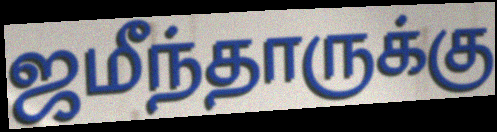
ஜமீந்தாருக்கு